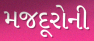
મજદૂરોની